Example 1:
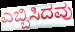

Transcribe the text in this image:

ಎಬ್ಬಿಸಿದವು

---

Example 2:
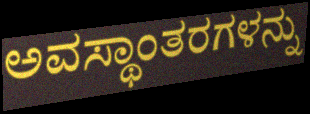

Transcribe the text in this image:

ಅವಸ್ಥಾಂತರಗಳನ್ನು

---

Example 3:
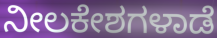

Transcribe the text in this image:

ನೀಲಕೇಶಗಳಾಡೆ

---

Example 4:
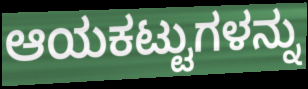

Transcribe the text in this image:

ಆಯಕಟ್ಟುಗಳನ್ನು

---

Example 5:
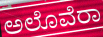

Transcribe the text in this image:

ಅಲೊವೆರಾ